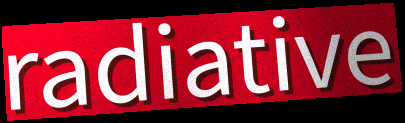
radiative